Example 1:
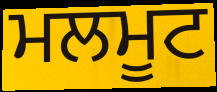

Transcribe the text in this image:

ਮਲਮੂਟ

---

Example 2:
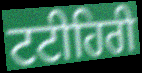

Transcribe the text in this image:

ਟਟੀਹਿਰੀ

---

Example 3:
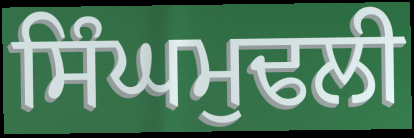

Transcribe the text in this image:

ਸਿੰਘਮੁਢਲੀ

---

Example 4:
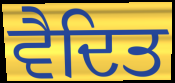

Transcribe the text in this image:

ਵੈਦਿਤ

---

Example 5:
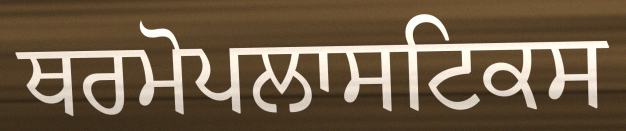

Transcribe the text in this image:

ਥਰਮੋਪਲਾਸਟਿਕਸ